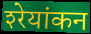
श्रेयांकन